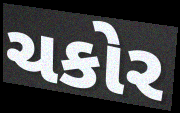
ચકોર